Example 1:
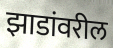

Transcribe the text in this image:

झाडांवरील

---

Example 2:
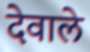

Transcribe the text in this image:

देवाले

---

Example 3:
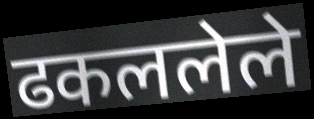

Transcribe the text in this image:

ढकललेले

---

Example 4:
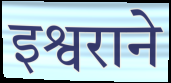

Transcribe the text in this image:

इश्वराने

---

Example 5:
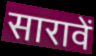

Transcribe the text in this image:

सारावें